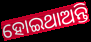
ହୋଇଥାଅନ୍ତି